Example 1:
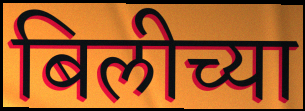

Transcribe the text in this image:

बिलीच्या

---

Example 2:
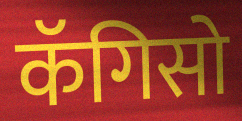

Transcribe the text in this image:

कॅगिसो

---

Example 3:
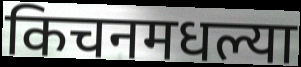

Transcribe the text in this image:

किचनमधल्या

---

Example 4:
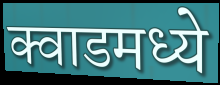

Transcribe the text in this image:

क्वाडमध्ये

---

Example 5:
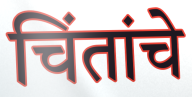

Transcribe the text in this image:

चिंतांचे